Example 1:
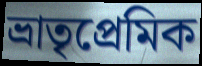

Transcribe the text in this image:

ভ্রাতৃপ্রেমিক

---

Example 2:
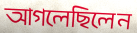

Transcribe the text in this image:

আগলেছিলেন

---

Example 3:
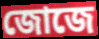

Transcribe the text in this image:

জোজে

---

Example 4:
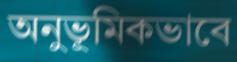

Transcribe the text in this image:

অনুভূমিকভাবে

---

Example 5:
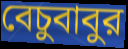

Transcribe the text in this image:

বেচুবাবুর